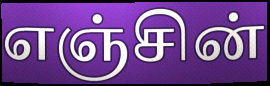
எஞ்சின்